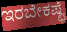
ಇರಬೇಕಷ್ಟೆ